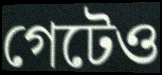
গেটেও